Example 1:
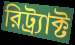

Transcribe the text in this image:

রিট্র্যাক্ট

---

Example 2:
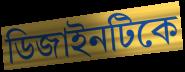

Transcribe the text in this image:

ডিজাইনটিকে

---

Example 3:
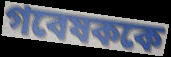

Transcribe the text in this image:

গবেষককে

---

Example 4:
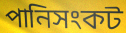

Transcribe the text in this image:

পানিসংকট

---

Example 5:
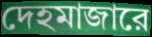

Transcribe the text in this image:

দেহমাজারে